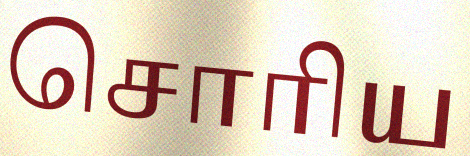
சொரிய